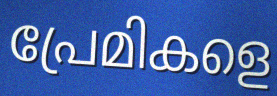
പ്രേമികളെ